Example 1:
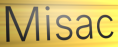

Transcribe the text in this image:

Misac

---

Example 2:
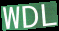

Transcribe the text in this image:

WDL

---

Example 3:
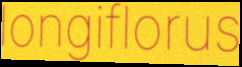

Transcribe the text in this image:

longiflorus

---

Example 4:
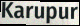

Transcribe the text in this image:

Karupur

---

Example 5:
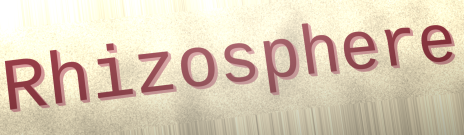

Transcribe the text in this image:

Rhizosphere